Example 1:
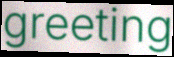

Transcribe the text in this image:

greeting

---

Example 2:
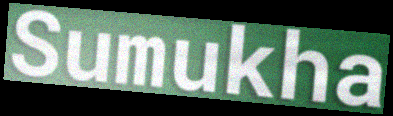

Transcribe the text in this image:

Sumukha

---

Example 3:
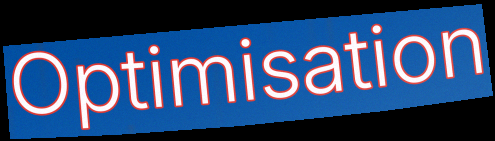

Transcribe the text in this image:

Optimisation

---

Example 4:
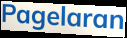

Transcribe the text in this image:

Pagelaran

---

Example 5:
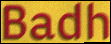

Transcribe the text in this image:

Badh